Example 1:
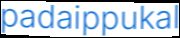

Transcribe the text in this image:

padaippukal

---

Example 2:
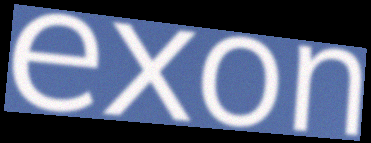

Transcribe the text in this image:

exon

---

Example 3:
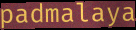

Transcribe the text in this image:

padmalaya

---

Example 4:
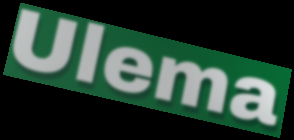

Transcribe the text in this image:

Ulema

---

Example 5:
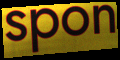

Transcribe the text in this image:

spon